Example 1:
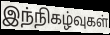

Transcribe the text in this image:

இந்நிகழ்வுகள்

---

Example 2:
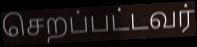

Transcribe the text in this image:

செறப்பட்டவர்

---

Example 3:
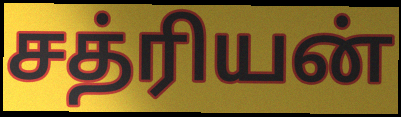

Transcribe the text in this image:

சத்ரியன்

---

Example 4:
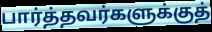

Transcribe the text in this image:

பார்த்தவர்களுக்குத்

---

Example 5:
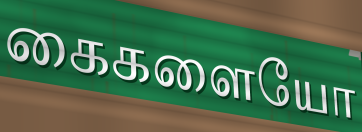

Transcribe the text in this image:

கைகளையோ